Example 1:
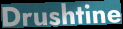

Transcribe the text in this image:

Drushtine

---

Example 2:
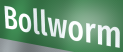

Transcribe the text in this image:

Bollworm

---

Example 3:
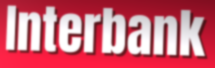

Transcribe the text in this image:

Interbank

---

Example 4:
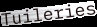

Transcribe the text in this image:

Tuileries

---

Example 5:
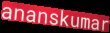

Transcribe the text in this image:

ananskumar